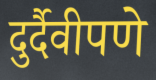
दुर्दैवीपणे